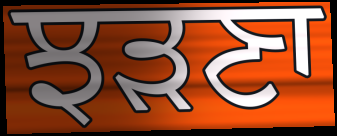
ਝੜਣਾ